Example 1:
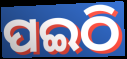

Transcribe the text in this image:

ପଇଠି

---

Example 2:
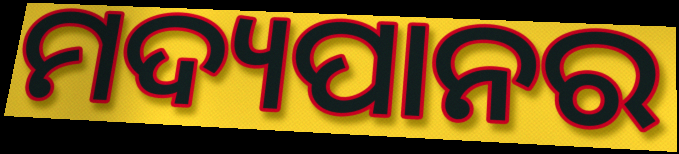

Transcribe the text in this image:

ମଦ୍ୟପାନର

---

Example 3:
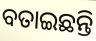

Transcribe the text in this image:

ବତାଇଛନ୍ତି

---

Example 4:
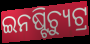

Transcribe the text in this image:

ଇନଷ୍ଟିଚ୍ୟୁଟ୍ର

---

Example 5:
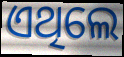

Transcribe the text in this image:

ଏଥିଲେ